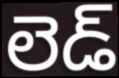
లెడ్